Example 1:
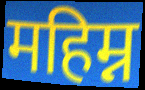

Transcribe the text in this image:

महिम्न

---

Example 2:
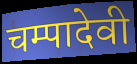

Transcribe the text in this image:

चम्पादेवी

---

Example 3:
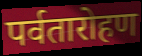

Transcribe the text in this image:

पर्वतारोहण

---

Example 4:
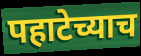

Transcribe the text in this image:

पहाटेच्याच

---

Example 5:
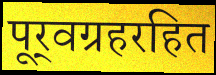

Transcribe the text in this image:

पूर्वग्रहरहित